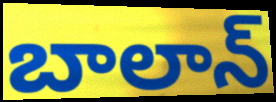
బాలాన్